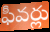
ఫీవర్లు